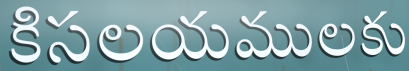
కిసలయములకు